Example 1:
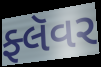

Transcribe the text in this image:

ફ્લૅવર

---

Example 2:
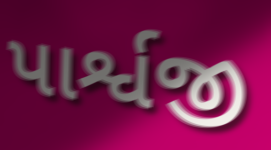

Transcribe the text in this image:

પાર્શ્વજી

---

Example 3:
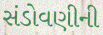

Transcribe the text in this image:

સંડોવણીની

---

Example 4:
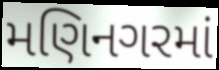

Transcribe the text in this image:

મણિનગરમાં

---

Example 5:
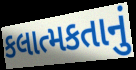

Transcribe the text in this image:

કલાત્મકતાનું